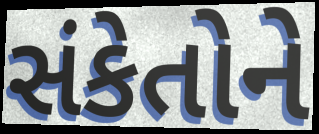
સંકેતોને